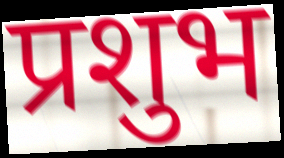
प्रशुभ